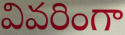
వివరింగా